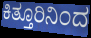
ಕಿತ್ತೂರಿನಿಂದ